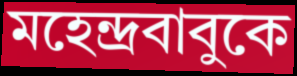
মহেন্দ্রবাবুকে